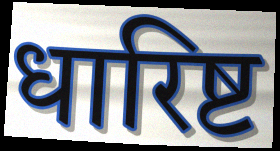
धारिष्ट